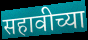
सहावीच्या